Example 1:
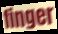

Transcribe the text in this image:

finger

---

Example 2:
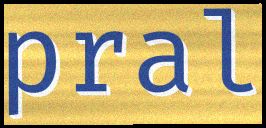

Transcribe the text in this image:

pral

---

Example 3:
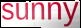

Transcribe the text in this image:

sunny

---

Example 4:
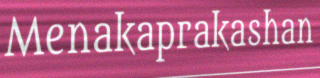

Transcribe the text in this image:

Menakaprakashan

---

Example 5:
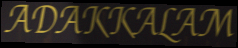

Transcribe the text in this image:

ADAKKALAM